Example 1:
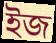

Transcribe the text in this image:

ইজ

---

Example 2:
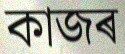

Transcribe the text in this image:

কাজৰ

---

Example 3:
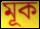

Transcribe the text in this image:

মূক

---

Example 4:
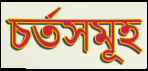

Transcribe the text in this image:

চৰ্তসমূহ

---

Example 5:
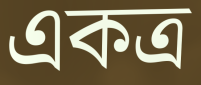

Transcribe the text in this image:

একত্ৰ